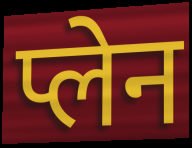
प्लेन